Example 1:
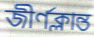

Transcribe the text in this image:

জীর্ণক্লান্ত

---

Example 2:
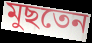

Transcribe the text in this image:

মুছতেন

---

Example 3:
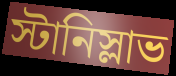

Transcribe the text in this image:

স্টানিস্লাভ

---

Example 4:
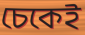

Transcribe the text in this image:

চেকেই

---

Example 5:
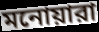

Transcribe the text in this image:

মনোয়ারা